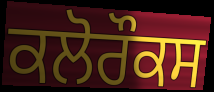
ਕਲੋਰੌਕਸ